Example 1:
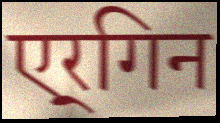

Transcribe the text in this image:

एर्गिन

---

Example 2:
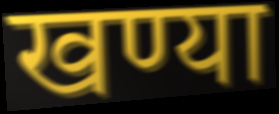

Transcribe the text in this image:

खण्या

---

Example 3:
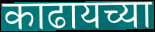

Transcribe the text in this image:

काढायच्या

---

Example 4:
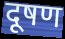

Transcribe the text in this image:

दूषण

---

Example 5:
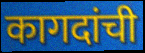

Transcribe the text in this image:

कागदांची